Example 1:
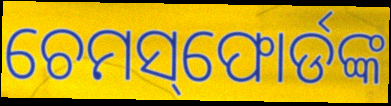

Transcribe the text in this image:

ଚେମସ୍‌ଫୋର୍ଡଙ୍କ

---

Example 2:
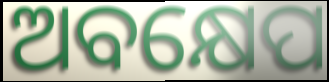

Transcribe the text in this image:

ଅବକ୍ଷେପ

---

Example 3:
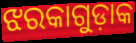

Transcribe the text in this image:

ଝରକାଗୁଡ଼ାକ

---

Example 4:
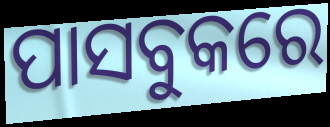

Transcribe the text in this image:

ପାସବୁକରେ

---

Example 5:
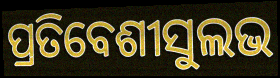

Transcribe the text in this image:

ପ୍ରତିବେଶୀସୁଲଭ